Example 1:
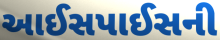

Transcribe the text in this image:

આઈસપાઈસની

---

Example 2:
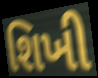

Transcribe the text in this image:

શિખી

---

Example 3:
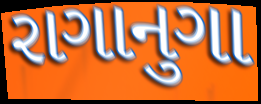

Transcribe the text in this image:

રાગાનુગા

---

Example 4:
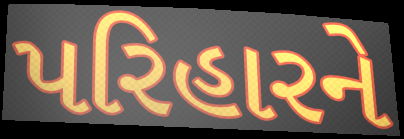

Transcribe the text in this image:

પરિહારને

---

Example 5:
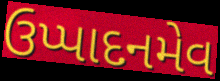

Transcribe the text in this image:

ઉપ્પાદનમેવ